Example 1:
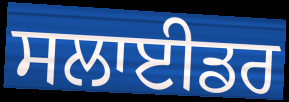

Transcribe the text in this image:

ਸਲਾਈਡਰ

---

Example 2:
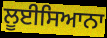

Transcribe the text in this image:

ਲੂਈਸਿਆਨਾ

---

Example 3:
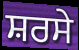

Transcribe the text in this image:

ਸ਼ਰਸੇ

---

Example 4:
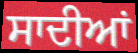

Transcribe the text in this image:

ਸਾਦੀਆਂ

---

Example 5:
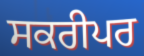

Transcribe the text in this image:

ਸਕਰੀਪਰ